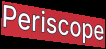
Periscope